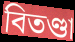
বিতণ্ডা